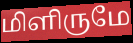
மிளிருமே